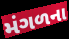
મંગળના